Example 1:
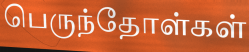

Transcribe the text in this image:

பெருந்தோள்கள்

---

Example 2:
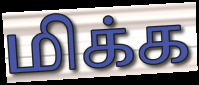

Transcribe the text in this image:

மிக்க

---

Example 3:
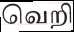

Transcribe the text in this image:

வெறி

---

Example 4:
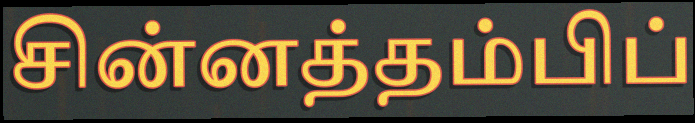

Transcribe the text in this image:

சின்னத்தம்பிப்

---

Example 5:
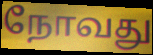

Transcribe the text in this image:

நோவது